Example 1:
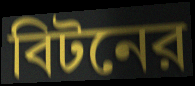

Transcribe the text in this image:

বিটনের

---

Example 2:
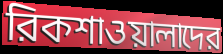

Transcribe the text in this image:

রিকশাওয়ালাদের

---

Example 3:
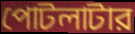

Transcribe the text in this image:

পোটলাটার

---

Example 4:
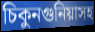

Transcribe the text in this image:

চিকুনগুনিয়াসহ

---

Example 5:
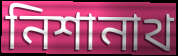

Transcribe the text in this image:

নিশানাথ